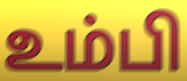
உம்பி